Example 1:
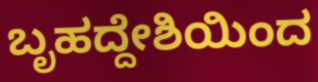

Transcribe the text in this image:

ಬೃಹದ್ದೇಶಿಯಿಂದ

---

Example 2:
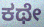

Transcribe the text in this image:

ಕಥೇ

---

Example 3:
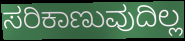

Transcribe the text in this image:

ಸರಿಕಾಣುವುದಿಲ್ಲ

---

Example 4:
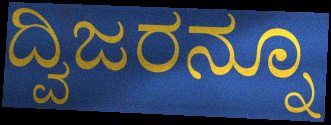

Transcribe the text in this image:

ದ್ವಿಜರನ್ನೂ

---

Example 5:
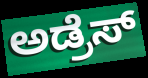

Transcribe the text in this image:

ಅಡ್ರೆಸ್